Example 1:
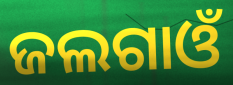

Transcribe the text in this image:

ଜଲଗାଓଁ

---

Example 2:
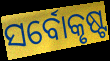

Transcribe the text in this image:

ସର୍ବୋକୃଷ୍ଟ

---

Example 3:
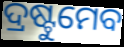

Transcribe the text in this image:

ଦ୍ରଷ୍ଟୁମେବ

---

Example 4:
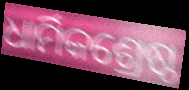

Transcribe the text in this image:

ଧାର୍ମିକଶ୍ରେଷ୍ଠ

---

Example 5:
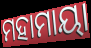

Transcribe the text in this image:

ମହାମାୟା